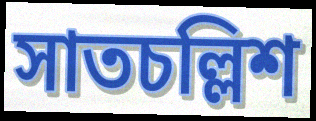
সাতচল্লিশ